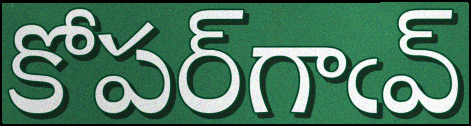
కోపర్‌గాఁవ్